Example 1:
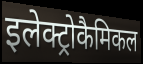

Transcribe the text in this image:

इलेक्ट्रोकैमिकल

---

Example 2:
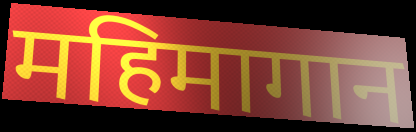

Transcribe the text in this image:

महिमागान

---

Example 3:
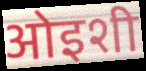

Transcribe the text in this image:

ओइशी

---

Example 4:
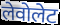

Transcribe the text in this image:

लेवोलेट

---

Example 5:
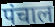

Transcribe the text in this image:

पंचाल